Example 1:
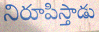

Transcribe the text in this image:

నిరూపిస్తాడు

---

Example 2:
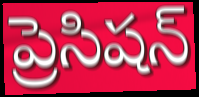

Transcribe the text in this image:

ప్రెసిషన్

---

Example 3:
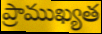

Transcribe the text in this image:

ప్రాముఖ్యత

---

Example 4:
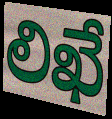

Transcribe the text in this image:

లిఖే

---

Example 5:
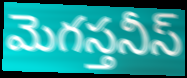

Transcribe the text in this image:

మెగస్తనీస్